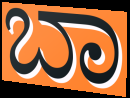
ಬಾ